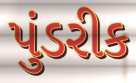
પુંડરીક